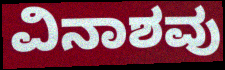
ವಿನಾಶವು